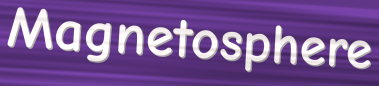
Magnetosphere